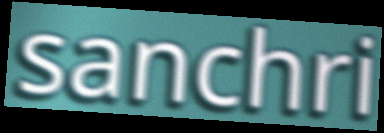
sanchri